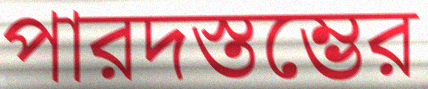
পারদস্তম্ভের